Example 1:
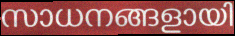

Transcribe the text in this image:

സാധനങ്ങളായി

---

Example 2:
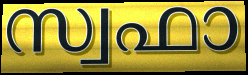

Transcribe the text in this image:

സ്വഫാ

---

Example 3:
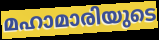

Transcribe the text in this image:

മഹാമാരിയുടെ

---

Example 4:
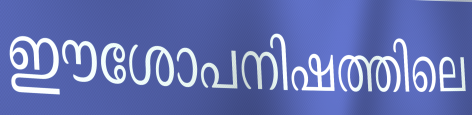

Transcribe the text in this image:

ഈശോപനിഷത്തിലെ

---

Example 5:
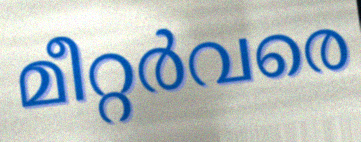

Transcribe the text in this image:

മീറ്റർവരെ